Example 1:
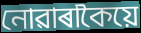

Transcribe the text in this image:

নোৱাৰাকৈয়ে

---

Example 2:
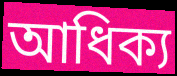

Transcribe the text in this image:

আধিক্য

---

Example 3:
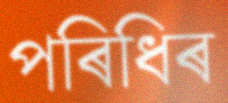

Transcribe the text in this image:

পৰিধিৰ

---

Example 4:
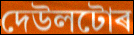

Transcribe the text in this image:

দেউলটোৰ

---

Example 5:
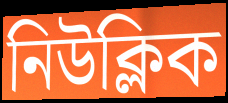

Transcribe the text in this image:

নিউক্লিক